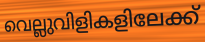
വെല്ലുവിളികളിലേക്ക്